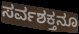
ಸರ್ವಶಕ್ತನೂ